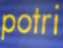
potri